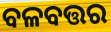
ବଳବତ୍ତର